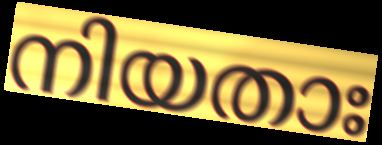
നിയതാഃ